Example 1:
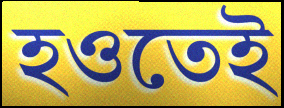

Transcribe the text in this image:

হওতেই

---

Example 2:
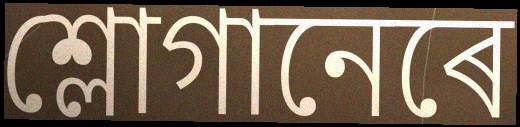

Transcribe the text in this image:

শ্লোগানেৰে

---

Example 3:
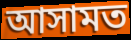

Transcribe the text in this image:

আসামত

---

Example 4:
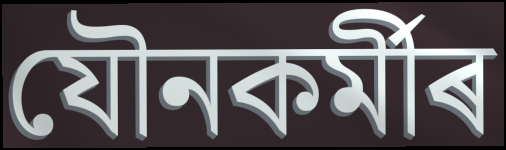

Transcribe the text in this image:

যৌনকৰ্মীৰ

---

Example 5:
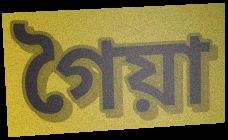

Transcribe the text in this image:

গৈয়া